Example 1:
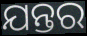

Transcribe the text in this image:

ଯନ୍ତର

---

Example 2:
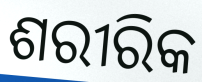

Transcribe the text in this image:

ଶରୀରିକ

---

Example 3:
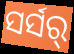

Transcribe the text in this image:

ସର୍ସର୍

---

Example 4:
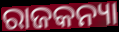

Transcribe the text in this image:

ରାଜକନ୍ୟା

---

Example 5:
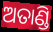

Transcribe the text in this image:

ଅତାଣ୍ଡି